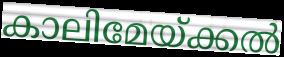
കാലിമേയ്ക്കൽ